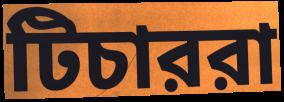
টিচাররা